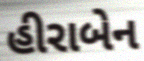
હીરાબેન